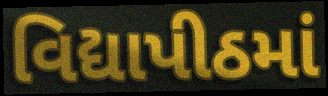
વિદ્યાપીઠમાં